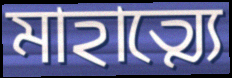
মাহাত্ম্যে